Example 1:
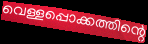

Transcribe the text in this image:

വെള്ളപ്പൊക്കത്തിന്റെ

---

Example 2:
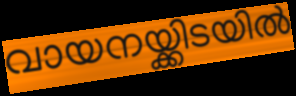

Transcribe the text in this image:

വായനയ്ക്കിടയിൽ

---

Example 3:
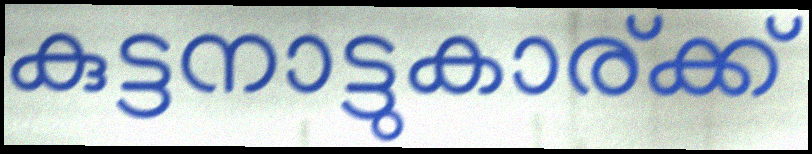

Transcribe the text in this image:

കുട്ടനാട്ടുകാര്ക്ക്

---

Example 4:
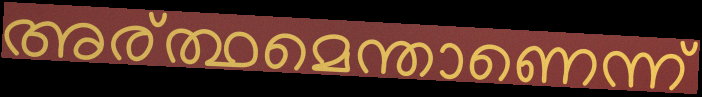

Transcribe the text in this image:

അര്ത്ഥമെന്താണെന്ന്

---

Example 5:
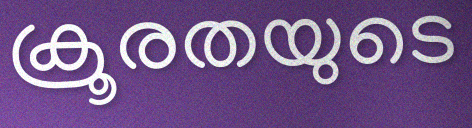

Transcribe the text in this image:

ക്രൂരതയുടെ